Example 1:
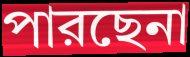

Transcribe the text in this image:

পারছেনা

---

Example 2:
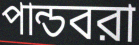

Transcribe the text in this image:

পান্ডবরা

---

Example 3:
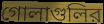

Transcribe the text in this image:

গোলাগুলির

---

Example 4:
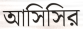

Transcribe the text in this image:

আসিসির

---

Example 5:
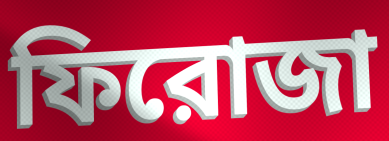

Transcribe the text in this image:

ফিরোজা